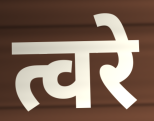
त्वरे